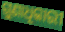
ଗୁଣାଧିକାରୀ